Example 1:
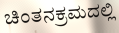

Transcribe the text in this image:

ಚಿಂತನಕ್ರಮದಲ್ಲಿ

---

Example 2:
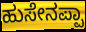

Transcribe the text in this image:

ಹುಸೇನಪ್ಪಾ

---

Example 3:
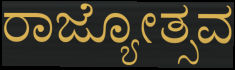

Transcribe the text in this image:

ರಾಜ್ಯೋತ್ಸವ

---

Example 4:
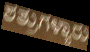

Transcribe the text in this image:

ಶತ್ರುಗಳ್ಯಾರು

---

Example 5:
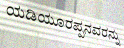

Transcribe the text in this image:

ಯಡಿಯೂರಪ್ಪನವರನ್ನು